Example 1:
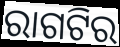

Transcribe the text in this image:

ରାଗଟିର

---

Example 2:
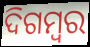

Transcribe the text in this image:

ଦିଗମ୍ବର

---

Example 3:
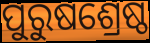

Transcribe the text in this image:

ପୁରୁଷଶ୍ରେଷ୍ଠ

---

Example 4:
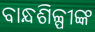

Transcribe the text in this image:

ବାନ୍ଧଶିଳ୍ପୀଙ୍କ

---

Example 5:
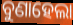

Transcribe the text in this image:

ବୁଣାହେଲା